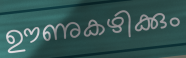
ഊണുകഴിക്കും